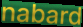
nabard